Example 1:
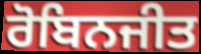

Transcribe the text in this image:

ਰੋਬਿਨਜੀਤ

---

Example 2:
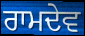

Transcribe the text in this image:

ਰਾਮਦੇਵ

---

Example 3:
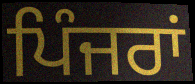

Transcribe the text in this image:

ਪਿੰਜਰਾਂ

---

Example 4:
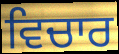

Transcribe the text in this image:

ਵਿਚਾਰ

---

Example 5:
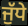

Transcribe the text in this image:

ਜੁੱਧੇ